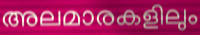
അലമാരകളിലും